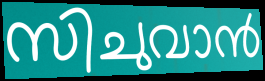
സിചുവാൻ